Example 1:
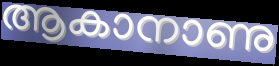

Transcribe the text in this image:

ആകാനാണു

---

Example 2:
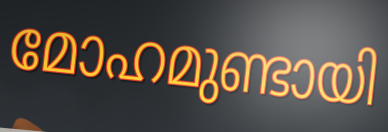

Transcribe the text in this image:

മോഹമുണ്ടായി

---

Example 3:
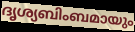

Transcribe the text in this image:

ദൃശ്യബിംബമായും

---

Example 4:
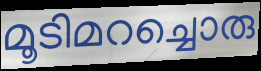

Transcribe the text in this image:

മൂടിമറച്ചൊരു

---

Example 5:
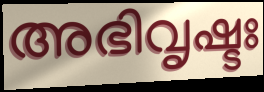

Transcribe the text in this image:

അഭിവൃഷ്ടഃ